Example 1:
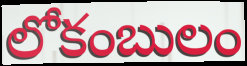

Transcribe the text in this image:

లోకంబులం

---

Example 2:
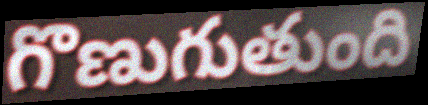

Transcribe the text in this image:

గొణుగుతుంది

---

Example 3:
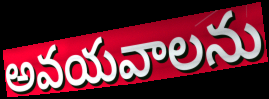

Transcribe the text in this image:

అవయవాలను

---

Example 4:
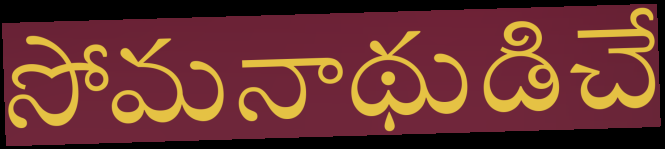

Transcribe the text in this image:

సోమనాథుడిచే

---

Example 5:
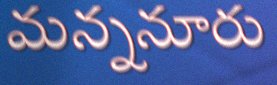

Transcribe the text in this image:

మన్ననూరు